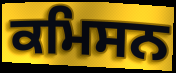
ਕਮਿਸਨ